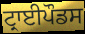
ਟ੍ਰਾਈਪੌਡਸ